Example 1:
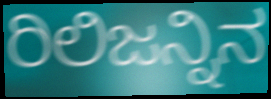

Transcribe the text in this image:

ರಿಲಿಜನ್ನಿನ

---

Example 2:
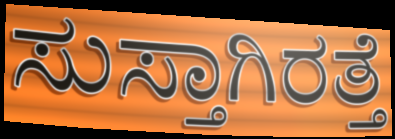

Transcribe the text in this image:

ಸುಸ್ತಾಗಿರತ್ತೆ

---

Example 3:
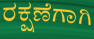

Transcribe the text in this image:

ರಕ್ಷಣೆಗಾಗಿ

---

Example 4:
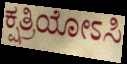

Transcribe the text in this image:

ಕ್ಷತ್ರಿಯೋಽಸಿ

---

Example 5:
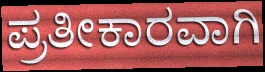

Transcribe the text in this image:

ಪ್ರತೀಕಾರವಾಗಿ